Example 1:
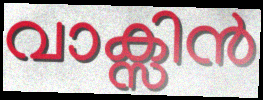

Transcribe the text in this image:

വാക്സിൻ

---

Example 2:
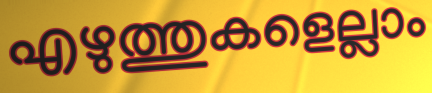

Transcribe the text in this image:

എഴുത്തുകളെല്ലാം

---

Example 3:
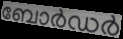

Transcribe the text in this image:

ബോർഡർ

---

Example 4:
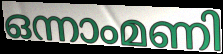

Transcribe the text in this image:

ഒന്നാംമണി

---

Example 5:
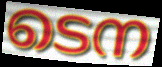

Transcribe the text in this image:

ടെന